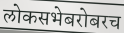
लोकसभेबरोबरच